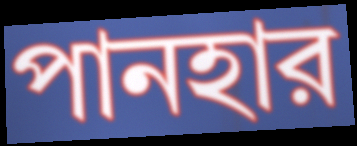
পানহার